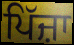
ਪਿੱਜ਼ਾ